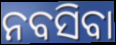
ନବସିବା